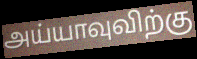
அய்யாவுவிற்கு